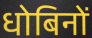
धोबिनों